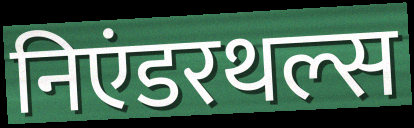
निएंडरथल्स